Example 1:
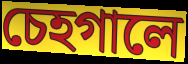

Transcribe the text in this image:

চেহগালে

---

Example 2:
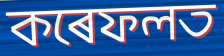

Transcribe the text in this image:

কৰেফলত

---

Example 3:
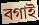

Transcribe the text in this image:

বগাই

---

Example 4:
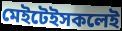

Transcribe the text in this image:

মেইটেইসকলেই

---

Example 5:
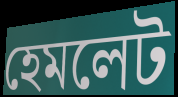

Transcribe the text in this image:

হেমলেট